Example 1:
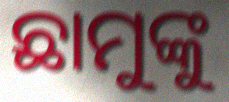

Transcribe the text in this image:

ଛାମୁଙ୍କୁ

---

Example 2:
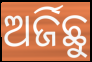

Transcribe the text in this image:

ଅର୍ଜିଛୁ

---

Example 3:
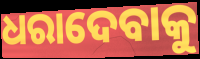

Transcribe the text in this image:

ଧରାଦେବାକୁ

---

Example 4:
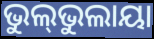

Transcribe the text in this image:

ଭୁଲ୍‌ଭୁଲାୟା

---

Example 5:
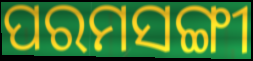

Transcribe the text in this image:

ପରମସଙ୍ଗୀ